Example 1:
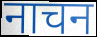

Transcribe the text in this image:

नाचन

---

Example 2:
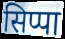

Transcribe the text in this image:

सिप्पा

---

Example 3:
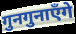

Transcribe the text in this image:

गुनगुनाएँगे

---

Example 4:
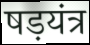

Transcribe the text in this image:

षड़यंत्र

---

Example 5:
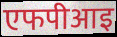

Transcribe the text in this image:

एफपीआइ